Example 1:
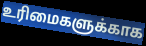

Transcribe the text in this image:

உரிமைகளுக்காக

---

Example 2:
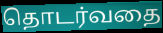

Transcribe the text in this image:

தொடர்வதை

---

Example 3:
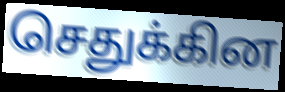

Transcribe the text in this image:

செதுக்கின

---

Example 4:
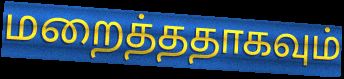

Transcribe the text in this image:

மறைத்ததாகவும்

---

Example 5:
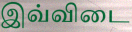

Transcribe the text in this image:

இவ்விடை